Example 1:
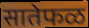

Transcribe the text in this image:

सातेफळ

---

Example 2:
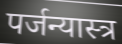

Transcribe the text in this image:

पर्जन्यास्त्र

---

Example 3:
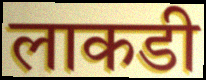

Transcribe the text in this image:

लाकडी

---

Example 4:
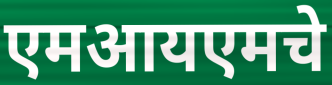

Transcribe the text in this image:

एमआयएमचे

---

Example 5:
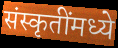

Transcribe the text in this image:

संस्कृतींमध्ये